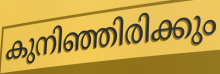
കുനിഞ്ഞിരിക്കും